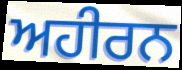
ਅਹੀਰਨ